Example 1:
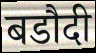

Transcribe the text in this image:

बडौदी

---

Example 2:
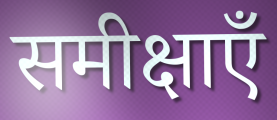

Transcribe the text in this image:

समीक्षाएँ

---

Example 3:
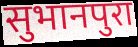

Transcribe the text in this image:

सुभानपुरा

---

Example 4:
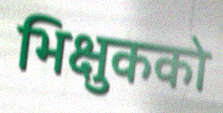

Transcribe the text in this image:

भिक्षुकको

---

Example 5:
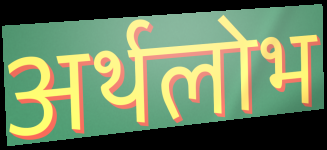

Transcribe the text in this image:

अर्थलोभ